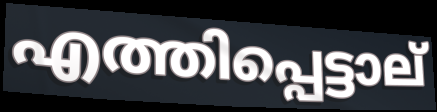
എത്തിപ്പെട്ടാല്